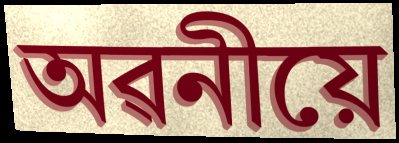
অৱনীয়ে